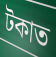
টকাত